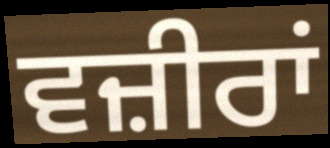
ਵਜ਼ੀਰਾਂ